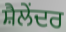
ਸ਼ੈਲੇਂਦਰ